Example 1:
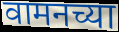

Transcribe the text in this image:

वामनच्या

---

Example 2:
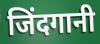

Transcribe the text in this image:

जिंदगानी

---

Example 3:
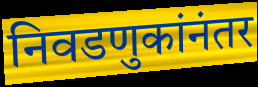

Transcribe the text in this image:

निवडणुकांनंतर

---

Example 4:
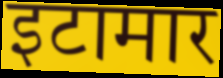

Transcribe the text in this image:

इटामार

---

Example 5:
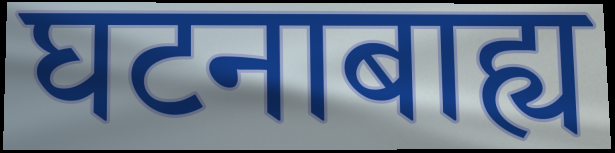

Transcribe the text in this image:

घटनाबाह्य